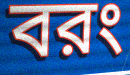
বরং